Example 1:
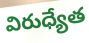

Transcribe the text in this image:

విరుధ్యేత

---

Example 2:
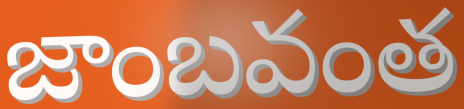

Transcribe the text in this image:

జాంబవంత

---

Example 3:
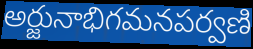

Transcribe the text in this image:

అర్జునాభిగమనపర్వణి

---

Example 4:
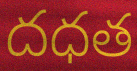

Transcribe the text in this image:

దధత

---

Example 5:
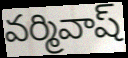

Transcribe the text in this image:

వర్మివాష్